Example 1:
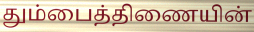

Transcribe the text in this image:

தும்பைத்திணையின்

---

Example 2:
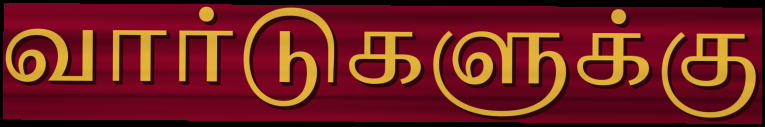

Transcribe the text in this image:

வார்டுகளுக்கு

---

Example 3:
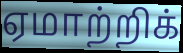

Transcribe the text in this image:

ஏமாற்றிக்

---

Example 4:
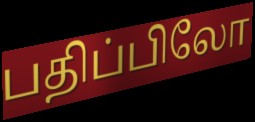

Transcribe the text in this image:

பதிப்பிலோ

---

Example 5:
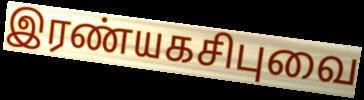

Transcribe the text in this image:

இரண்யகசிபுவை